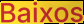
Baixos